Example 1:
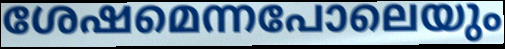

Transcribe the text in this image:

ശേഷമെന്നപോലെയും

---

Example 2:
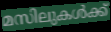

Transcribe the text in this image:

മസിലുകൾക്ക്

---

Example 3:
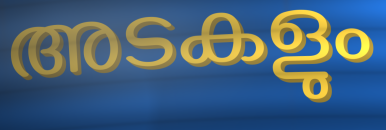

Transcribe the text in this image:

അടകളും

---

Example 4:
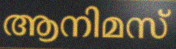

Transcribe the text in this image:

ആനിമസ്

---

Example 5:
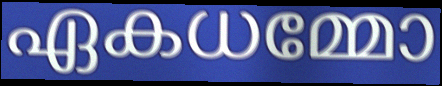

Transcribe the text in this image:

ഏകധമ്മോ